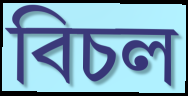
বিচল